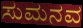
ಸುಮನವ